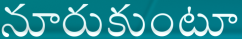
నూరుకుంటూ